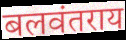
बलवंतराय